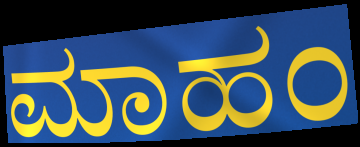
ಮಾಹಂ